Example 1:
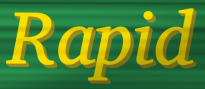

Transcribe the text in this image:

Rapid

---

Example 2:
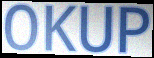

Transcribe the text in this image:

OKUP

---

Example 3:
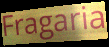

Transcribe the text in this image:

Fragaria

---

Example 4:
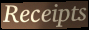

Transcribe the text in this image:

Receipts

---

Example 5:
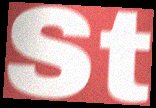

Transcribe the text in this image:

St